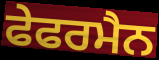
ਫੇਫਰਮੈਨ